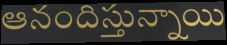
ఆనందిస్తున్నాయి